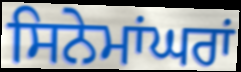
ਸਿਨੇਮਾਂਘਰਾਂ